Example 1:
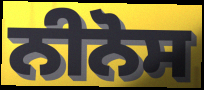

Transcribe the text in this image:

ਨੀਨੋਸ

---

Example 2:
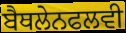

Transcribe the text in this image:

ਬੈਥਲੇਨਫਲਵੀ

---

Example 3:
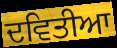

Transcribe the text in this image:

ਦਵਿਤੀਆ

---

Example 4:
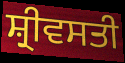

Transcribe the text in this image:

ਸ਼੍ਰੀਵਸਤੀ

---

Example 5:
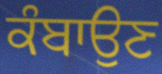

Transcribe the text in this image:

ਕੰਬਾਉਣ